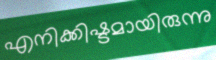
എനിക്കിഷ്ടമായിരുന്നു